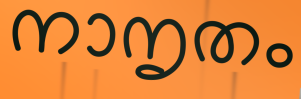
നാനൃതം